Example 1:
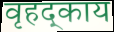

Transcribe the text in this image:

वृहद्काय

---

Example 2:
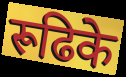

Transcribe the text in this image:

रूढिके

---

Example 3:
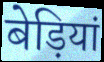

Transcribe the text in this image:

बेड़ियां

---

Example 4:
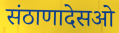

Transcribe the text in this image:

संठाणादेसओ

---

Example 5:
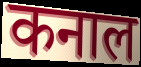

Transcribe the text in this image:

कनाल